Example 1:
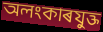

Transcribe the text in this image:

অলংকাৰযুক্ত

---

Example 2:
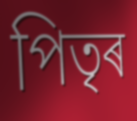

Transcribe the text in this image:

পিতৃৰ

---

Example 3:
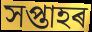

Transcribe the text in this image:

সপ্তাহৰ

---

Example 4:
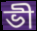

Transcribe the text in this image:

ভী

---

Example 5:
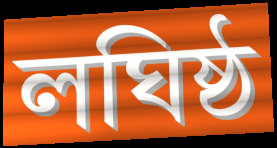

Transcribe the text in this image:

লঘিষ্ঠ